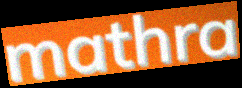
mathra